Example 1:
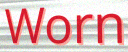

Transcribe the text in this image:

Worn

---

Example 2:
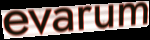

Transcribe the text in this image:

evarum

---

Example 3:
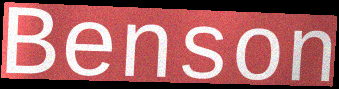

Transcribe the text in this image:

Benson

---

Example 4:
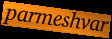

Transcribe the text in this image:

parmeshvar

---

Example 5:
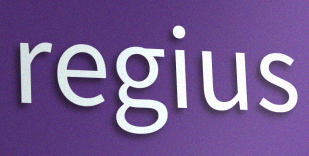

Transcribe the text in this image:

regius